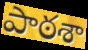
పాఠశా